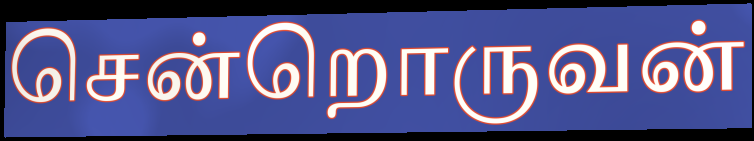
சென்றொருவன்